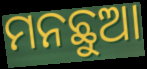
ମନଛୁଆ